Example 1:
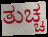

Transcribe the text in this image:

ತುಚ್ಚ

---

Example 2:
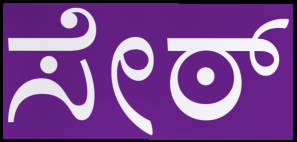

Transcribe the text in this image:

ಸೇಠ್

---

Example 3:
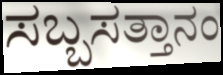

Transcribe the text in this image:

ಸಬ್ಬಸತ್ತಾನಂ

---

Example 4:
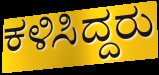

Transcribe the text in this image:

ಕಳಿಸಿದ್ದರು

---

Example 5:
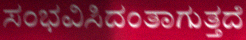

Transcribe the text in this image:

ಸಂಭವಿಸಿದಂತಾಗುತ್ತದೆ